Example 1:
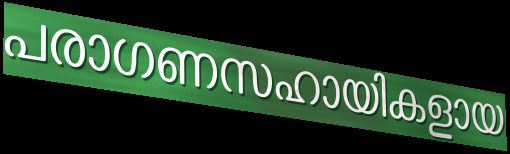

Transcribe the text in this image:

പരാഗണസഹായികളായ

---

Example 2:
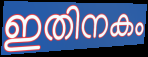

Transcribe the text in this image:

ഇതിനകം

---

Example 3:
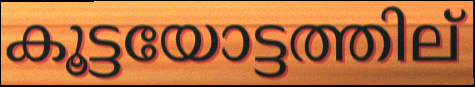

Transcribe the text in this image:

കൂട്ടയോട്ടത്തില്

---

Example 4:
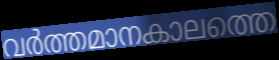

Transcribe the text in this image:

വർത്തമാനകാലത്തെ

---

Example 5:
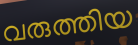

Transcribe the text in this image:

വരുത്തിയ